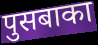
पुसबाका